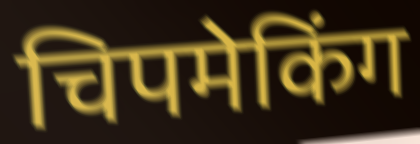
चिपमेकिंग